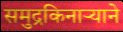
समुद्रकिनाऱ्याने